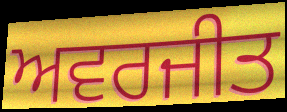
ਅਵਰਜੀਤ